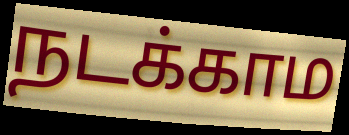
நடக்காம